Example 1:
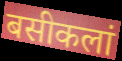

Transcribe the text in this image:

बसीकलां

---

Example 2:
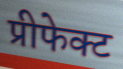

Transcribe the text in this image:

प्रीफेक्ट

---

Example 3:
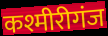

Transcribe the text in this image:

कश्मीरीगंज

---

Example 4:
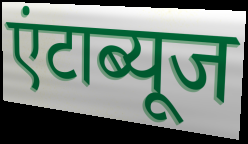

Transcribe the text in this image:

एंटाब्यूज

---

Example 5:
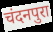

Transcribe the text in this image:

चंदनपुरा